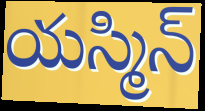
యస్మిన్